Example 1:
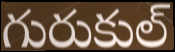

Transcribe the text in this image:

గురుకుల్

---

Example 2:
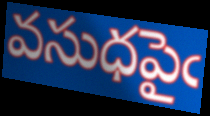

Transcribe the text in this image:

వసుధపైఁ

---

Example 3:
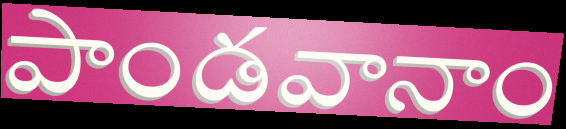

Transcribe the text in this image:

పాండవానాం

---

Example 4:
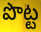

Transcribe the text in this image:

పొట్ట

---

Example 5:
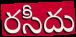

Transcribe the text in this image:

రసీదు